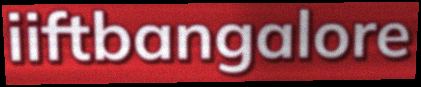
iiftbangalore